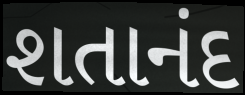
શતાનંદ